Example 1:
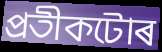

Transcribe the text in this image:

প্ৰতীকটোৰ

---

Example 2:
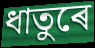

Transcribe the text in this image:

ধাতুৰে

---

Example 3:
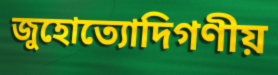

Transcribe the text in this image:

জুহোত্যোদিগণীয়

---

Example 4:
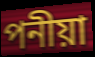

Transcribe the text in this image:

পনীয়া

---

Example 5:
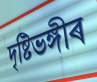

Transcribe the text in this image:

দৃষ্টিভঙ্গীৰ